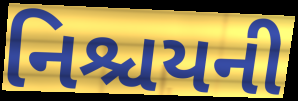
નિશ્ચયની